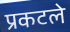
प्रकटले